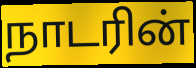
நாடரின்